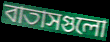
বাতাসগুলো